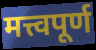
मत्त्वपूर्ण